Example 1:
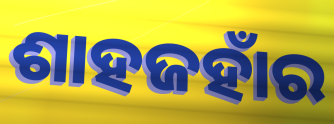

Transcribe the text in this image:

ଶାହଜହାଁର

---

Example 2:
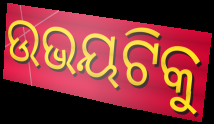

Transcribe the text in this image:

ଉଭୟଟିକୁ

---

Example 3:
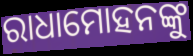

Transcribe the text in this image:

ରାଧାମୋହନଙ୍କୁ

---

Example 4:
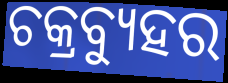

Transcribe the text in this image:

ଚକ୍ରବ୍ୟୁହର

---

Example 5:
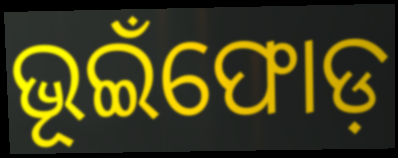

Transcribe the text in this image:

ଭୂଇଁଫୋଡ଼